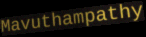
Mavuthampathy